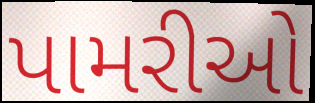
પામરીઓ